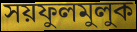
সয়ফুলমুলুক